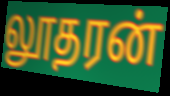
லூதரன்